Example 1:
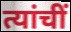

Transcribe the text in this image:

त्यांचीं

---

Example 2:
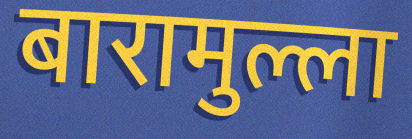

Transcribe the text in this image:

बारामुल्ला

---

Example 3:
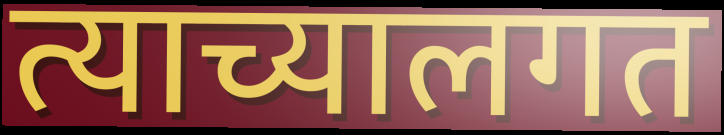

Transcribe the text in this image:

त्याच्यालगत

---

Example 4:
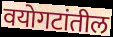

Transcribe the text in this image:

वयोगटांतील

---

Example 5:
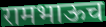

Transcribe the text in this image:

रामभाऊच